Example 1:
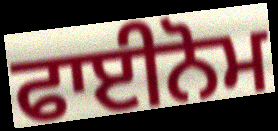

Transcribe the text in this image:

ਫਾਈਨੋਮ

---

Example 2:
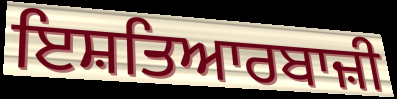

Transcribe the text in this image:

ਇਸ਼ਤਿਆਰਬਾਜ਼ੀ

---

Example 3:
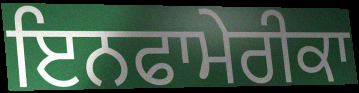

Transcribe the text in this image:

ਇਨਫਾਮੇਰੀਕਾ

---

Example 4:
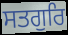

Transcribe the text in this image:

ਸਤਗੁਰਿ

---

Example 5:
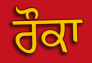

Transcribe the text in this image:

ਰੌਕਾ